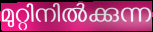
മുറ്റിനിൽക്കുന്ന